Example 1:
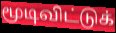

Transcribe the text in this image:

மூடிவிட்டுக்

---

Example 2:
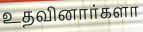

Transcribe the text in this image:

உதவினார்களா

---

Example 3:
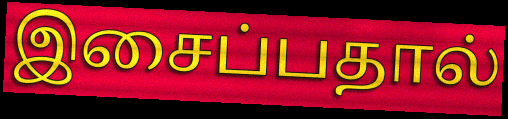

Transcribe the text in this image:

இசைப்பதால்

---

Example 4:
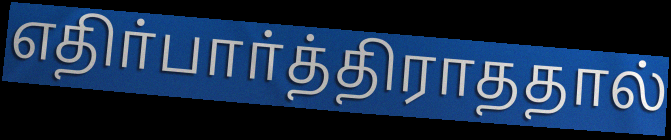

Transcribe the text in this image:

எதிர்பார்த்திராததால்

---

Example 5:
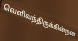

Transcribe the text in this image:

வெளிவந்திருக்கின்றன